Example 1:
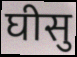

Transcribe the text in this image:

घीसु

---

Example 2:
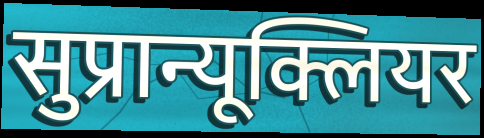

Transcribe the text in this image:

सुप्रान्यूक्लियर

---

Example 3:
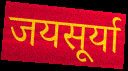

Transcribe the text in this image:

जयसूर्या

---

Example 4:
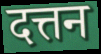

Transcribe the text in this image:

दत्तन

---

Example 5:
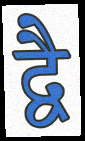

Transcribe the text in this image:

द्वै